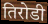
तिरोडी